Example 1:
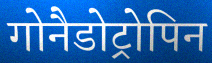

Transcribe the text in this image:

गोनैडोट्रोपिन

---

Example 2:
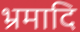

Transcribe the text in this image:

भ्रमादि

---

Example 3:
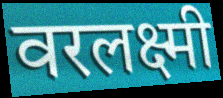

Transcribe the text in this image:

वरलक्ष्‍मी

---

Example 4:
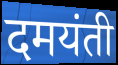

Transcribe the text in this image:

दमयंती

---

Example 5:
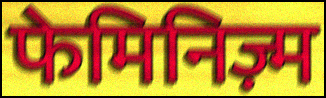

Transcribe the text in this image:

फेमिनिज़्म